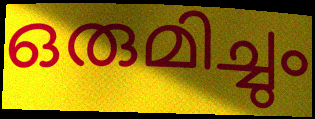
ഒരുമിച്ചും